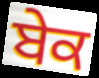
ਬੇਕ